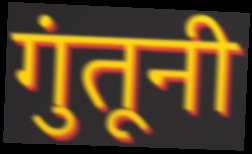
गुंतूनी